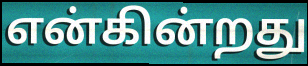
என்கின்றது